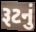
રૂટનું